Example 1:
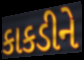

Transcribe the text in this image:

કાકડીને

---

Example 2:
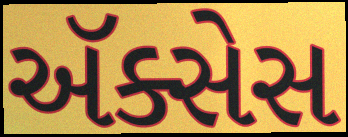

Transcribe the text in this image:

ઍક્સેસ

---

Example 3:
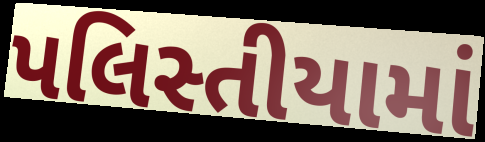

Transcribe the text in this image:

પલિસ્તીયામાં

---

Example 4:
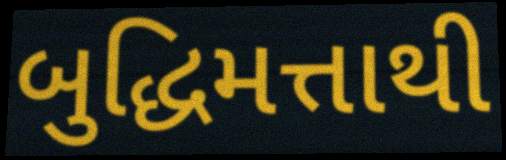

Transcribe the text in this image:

બુદ્ધિમત્તાથી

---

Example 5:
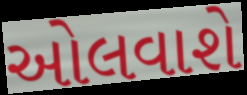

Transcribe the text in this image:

ઓલવાશે